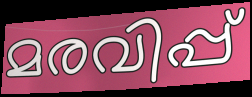
മരവിപ്പ്